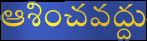
ఆశించవద్దు